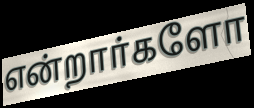
என்றார்களோ